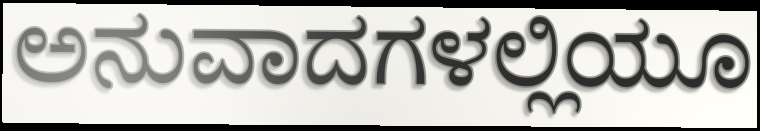
ಅನುವಾದಗಳಲ್ಲಿಯೂ